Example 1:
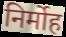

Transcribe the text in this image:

निर्मोह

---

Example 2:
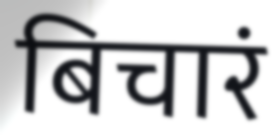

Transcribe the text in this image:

बिचारं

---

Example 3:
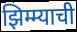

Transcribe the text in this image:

झिम्म्याची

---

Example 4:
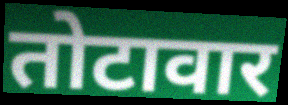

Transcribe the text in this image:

तोटावार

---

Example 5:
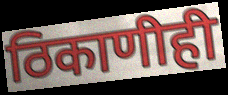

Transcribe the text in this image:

ठिकाणीही